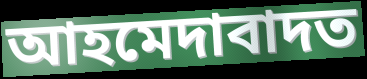
আহমেদাবাদত